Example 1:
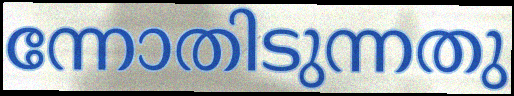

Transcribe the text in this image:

ന്നോതിടുന്നതു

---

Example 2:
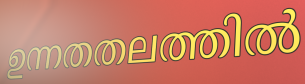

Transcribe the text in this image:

ഉന്നതതലത്തിൽ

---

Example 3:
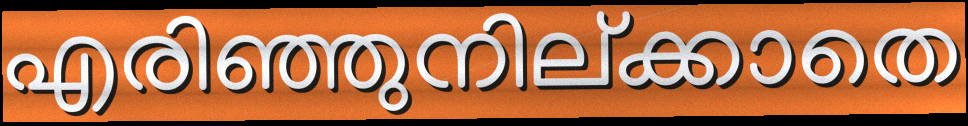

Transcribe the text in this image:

എരിഞ്ഞുനില്ക്കാതെ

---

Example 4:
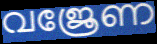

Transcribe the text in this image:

വജ്രേണ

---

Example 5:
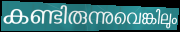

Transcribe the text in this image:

കണ്ടിരുന്നുവെങ്കിലും